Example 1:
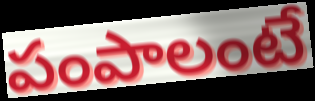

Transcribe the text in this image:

పంపాలంటే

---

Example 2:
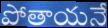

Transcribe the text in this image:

పోతాయనే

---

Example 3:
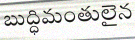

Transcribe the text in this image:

బుద్ధిమంతులైన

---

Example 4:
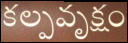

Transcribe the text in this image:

కల్పవృక్షం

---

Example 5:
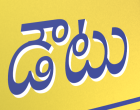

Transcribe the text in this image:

డౌటు